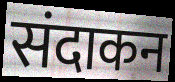
संदाकन